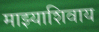
माझ्याशिवाय